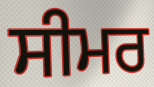
ਸੀਮਰ